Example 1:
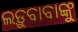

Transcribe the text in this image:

ଲଡ଼ୁବାବାଙ୍କୁ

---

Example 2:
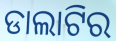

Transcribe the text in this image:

ଡାଲାଟିର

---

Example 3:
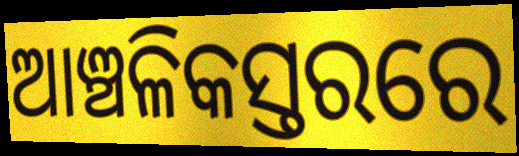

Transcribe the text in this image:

ଆଞ୍ଚଳିକସ୍ତରରେ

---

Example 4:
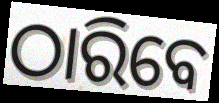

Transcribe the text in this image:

ଠାରିବେ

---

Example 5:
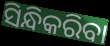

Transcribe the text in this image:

ସିନ୍ଧିକରିବା